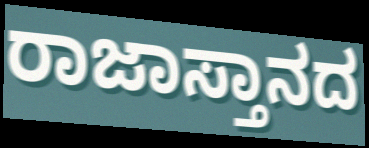
ರಾಜಾಸ್ತಾನದ